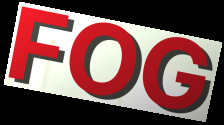
FOG